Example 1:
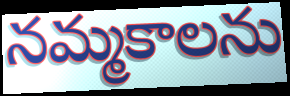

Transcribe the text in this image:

నమ్మకాలను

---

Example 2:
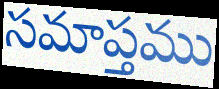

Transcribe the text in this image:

సమాప్తము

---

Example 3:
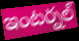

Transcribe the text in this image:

ఇంటర్నల్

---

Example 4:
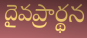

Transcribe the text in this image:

దైవప్రార్థన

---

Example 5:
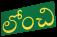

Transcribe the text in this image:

లోంచి